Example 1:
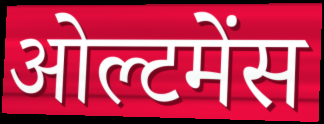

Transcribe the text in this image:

ओल्टमेंस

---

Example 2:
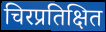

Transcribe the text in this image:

चिरप्रतिक्षित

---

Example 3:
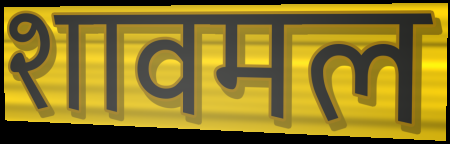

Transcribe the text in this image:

शावमल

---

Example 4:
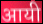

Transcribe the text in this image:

आयी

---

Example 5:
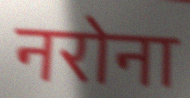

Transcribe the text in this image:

नरोना